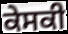
ਕੇਸਕੀ